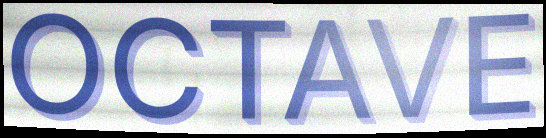
OCTAVE